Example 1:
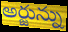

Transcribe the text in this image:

అర్జున్ను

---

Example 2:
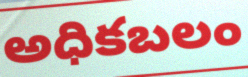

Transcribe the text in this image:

అధికబలం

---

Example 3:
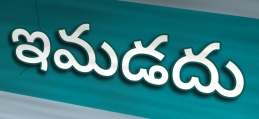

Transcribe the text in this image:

ఇమడదు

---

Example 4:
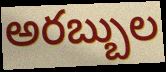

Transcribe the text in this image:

అరబ్బుల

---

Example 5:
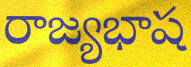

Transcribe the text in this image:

రాజ్యభాష